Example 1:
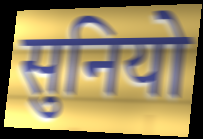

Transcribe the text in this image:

सुनियो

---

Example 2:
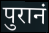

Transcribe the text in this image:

पुरानं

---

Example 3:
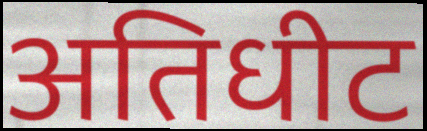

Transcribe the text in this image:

अतिधीट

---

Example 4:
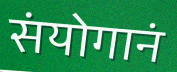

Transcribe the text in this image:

संयोगानं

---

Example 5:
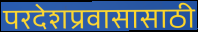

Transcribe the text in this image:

परदेशप्रवासासाठी